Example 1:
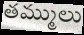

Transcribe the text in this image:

తమ్ములు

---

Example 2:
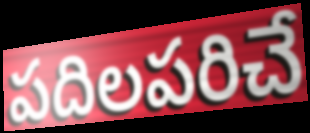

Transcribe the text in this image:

పదిలపరిచే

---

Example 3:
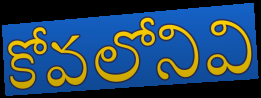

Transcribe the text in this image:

కోవలోనివి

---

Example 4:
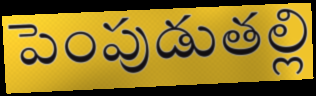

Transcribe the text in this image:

పెంపుడుతల్లి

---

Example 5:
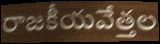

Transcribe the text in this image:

రాజకీయవేత్తల